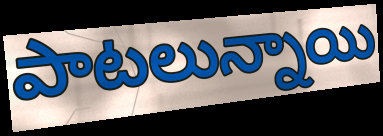
పాటలున్నాయి